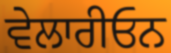
ਵੇਲਾਰੀਓਨ